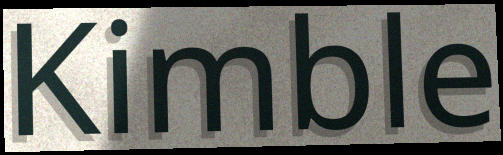
Kimble